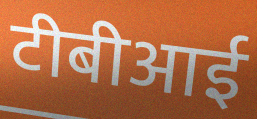
टीबीआई